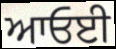
ਆਓਈ